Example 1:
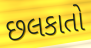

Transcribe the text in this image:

છલકાતો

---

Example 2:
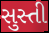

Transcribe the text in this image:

સુસ્તી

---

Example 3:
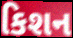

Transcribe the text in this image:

કિશન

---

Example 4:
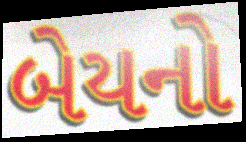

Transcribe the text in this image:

બેયનો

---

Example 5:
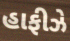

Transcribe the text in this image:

હાફીઝે